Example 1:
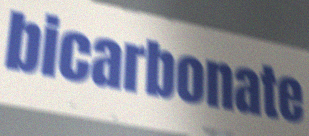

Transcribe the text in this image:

bicarbonate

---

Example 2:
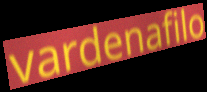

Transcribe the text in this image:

vardenafilo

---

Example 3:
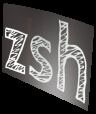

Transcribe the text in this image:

zsh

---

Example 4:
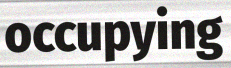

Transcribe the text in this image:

occupying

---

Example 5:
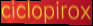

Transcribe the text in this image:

ciclopirox